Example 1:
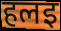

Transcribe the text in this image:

हलइ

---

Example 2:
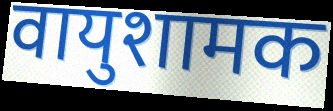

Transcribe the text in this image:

वायुशामक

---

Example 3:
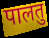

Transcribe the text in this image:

पालतु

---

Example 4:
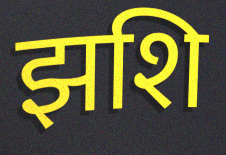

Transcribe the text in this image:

झशि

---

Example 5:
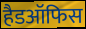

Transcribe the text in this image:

हैडऑफिस